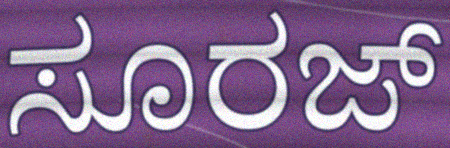
ಸೂರಜ್